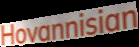
Hovannisian